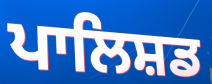
ਪਾਲਿਸ਼ਡ